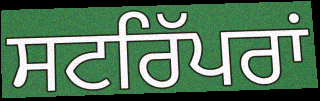
ਸਟਰਿੱਪਰਾਂ